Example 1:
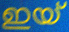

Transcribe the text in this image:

ഇയ്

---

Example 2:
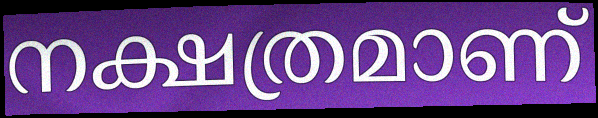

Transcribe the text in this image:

നക്ഷത്രമാണ്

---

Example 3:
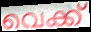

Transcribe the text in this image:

വെക്ക്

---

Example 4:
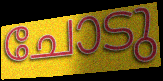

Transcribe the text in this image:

ചോടു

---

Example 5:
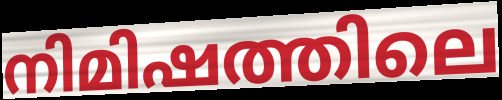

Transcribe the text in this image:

നിമിഷത്തിലെ